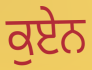
ਕੁਏਨ